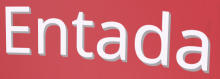
Entada